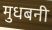
मुधबनी